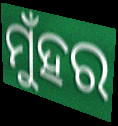
ମୁଁହର